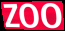
ZOO